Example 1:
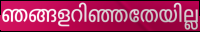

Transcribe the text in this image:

ഞങ്ങളറിഞ്ഞതേയില്ല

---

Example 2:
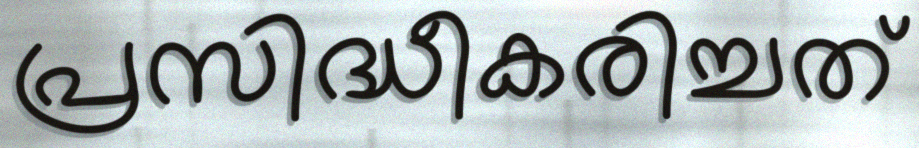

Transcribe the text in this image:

പ്രസിദ്ധീകരിച്ചത്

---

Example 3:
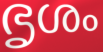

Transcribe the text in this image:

ഭൃശം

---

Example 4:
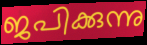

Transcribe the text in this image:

ജപിക്കുന്നു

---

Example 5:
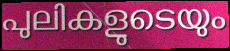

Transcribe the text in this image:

പുലികളുടെയും